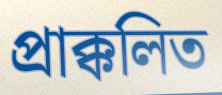
প্রাক্কলিত